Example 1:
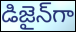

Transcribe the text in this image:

డిజైన్‌గా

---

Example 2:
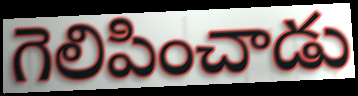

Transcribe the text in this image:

గెలిపించాడు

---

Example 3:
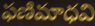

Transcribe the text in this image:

ఫణిమాధవి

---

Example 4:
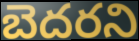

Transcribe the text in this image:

బెదరని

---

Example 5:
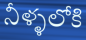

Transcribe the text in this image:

నీళ్ళలోకి